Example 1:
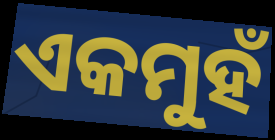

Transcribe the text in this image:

ଏକମୁହଁ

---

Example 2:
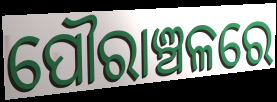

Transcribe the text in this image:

ପୌରାଞ୍ଚଳରେ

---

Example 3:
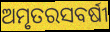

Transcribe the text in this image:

ଅମୃତରସବର୍ଷୀ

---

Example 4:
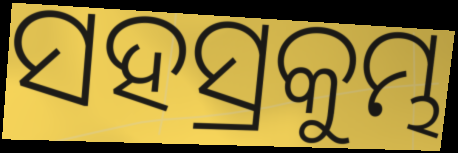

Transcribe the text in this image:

ସହସ୍ରକୁମ୍ଭ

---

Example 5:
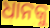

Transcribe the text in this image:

ଧାନକୁ